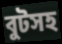
বুটসহ